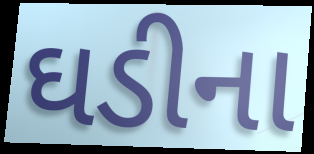
ઘડીના